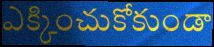
ఎక్కించుకోకుండా